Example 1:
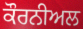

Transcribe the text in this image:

ਕੌਰਨੀਅਲ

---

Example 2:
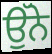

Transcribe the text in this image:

ਉੱਨੇ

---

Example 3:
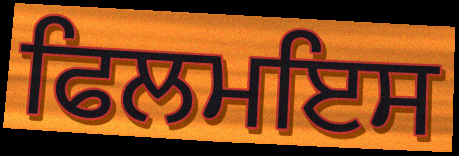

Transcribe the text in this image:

ਫਿਲਮਇਸ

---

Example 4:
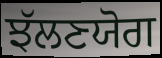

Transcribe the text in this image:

ਝੱਲਣਯੋਗ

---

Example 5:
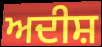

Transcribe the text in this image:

ਅਦੀਸ਼